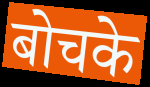
बोचके